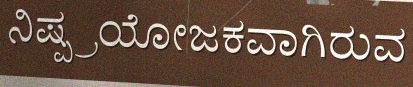
ನಿಷ್ಪ್ರಯೋಜಕವಾಗಿರುವ